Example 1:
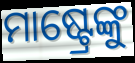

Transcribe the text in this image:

ମାଷ୍ଟ୍ରେଙ୍କୁ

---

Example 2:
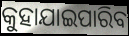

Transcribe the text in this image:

କୁହାଯାଇପାରିବ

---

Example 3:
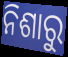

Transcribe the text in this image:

ନିଶାରୁ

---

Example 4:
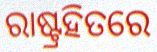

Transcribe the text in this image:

ରାଷ୍ଟ୍ରହିତରେ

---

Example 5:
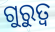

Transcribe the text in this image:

ଗୁରୁତ୍ବ